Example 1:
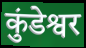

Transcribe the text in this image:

कुंडेश्वर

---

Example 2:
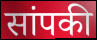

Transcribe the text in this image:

सांपकी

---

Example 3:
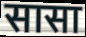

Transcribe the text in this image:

सासा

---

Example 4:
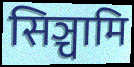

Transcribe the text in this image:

सिञ्चामि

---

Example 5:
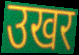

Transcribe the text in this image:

उखर